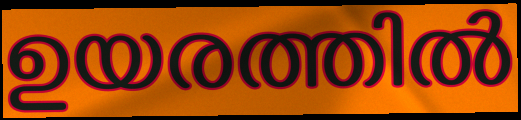
ഉയരത്തിൽ